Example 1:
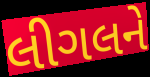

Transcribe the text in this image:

લીગલને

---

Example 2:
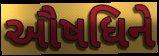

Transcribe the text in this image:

ઔષધિને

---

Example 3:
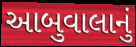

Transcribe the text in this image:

આબુવાલાનું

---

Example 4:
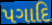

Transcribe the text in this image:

પગાદિ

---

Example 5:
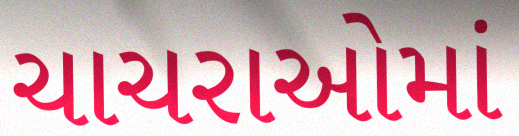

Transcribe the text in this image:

ચાચરાઓમાં